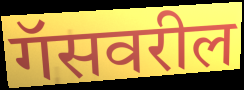
गॅसवरील